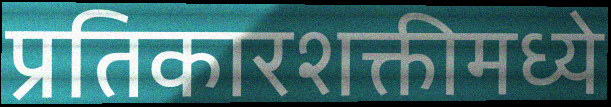
प्रतिकारशक्तीमध्ये